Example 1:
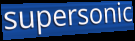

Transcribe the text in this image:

supersonic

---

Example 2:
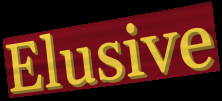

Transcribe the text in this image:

Elusive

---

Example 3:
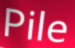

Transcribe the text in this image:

Pile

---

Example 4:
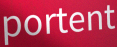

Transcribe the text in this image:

portent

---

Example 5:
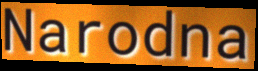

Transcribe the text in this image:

Narodna